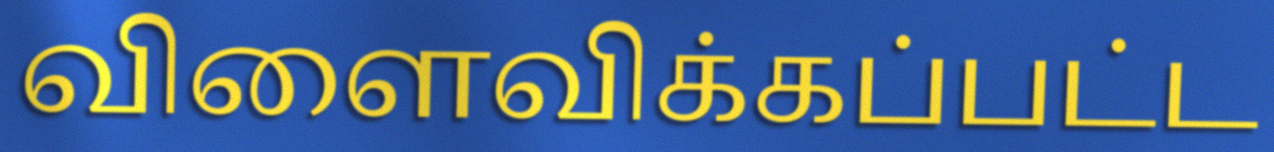
விளைவிக்கப்பட்ட